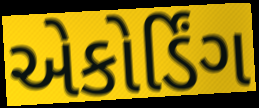
એકોર્ડિંગ